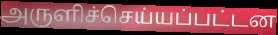
அருளிச்செய்யப்பட்டன